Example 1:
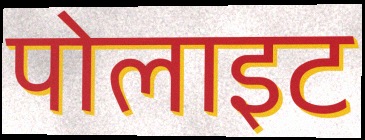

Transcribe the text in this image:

पोलाइट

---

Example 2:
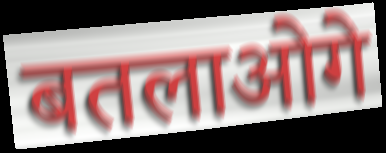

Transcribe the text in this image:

बतलाओगे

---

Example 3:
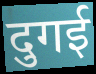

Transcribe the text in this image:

दुगई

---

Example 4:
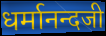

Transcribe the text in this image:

धर्मानन्दजी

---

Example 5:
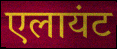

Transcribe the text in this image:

एलायंट